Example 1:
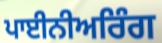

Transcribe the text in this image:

ਪਾਈਨੀਅਰਿੰਗ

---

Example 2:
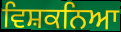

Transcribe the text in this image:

ਵਿਸ਼ਕਨਿਆ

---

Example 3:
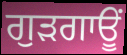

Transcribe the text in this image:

ਗੁੜਗਾਊਂ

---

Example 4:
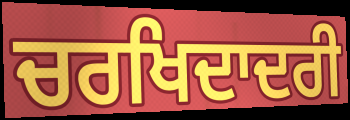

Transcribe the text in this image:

ਚਰਖਿਦਾਦਰੀ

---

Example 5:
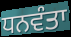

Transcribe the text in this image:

ਧਨਵੰਤਾ